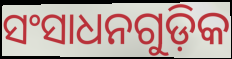
ସଂସାଧନଗୁଡ଼ିକ